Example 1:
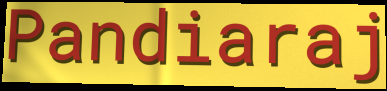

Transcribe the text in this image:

Pandiaraj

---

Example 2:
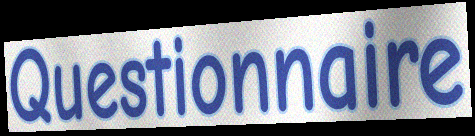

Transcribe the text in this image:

Questionnaire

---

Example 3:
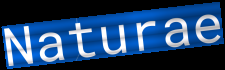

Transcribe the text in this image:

Naturae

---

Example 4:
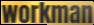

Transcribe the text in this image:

workman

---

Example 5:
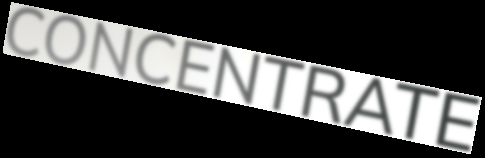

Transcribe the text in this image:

CONCENTRATE